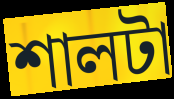
শালটা